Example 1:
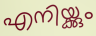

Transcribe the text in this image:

എനിയ്ക്കും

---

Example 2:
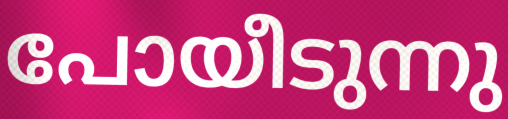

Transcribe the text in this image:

പോയീടുന്നു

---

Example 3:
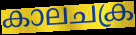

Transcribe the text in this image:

കാലചക്ര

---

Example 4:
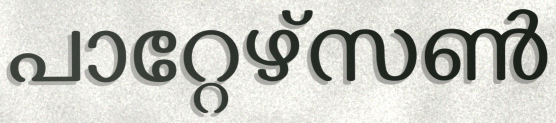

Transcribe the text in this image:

പാറ്റേഴ്സൺ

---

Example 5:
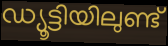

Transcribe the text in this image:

ഡ്യൂട്ടിയിലുണ്ട്